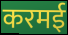
करमई